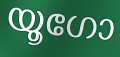
യൂഗോ